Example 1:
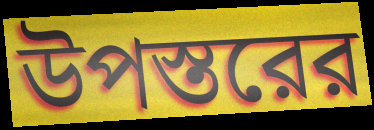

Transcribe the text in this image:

উপস্তরের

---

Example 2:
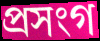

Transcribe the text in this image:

প্রসংগ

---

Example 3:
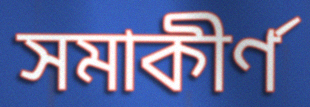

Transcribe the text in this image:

সমাকীর্ণ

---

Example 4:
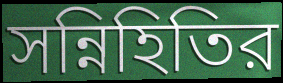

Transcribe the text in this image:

সন্নিহিতির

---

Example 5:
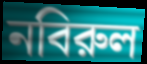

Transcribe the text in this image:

নবিরুল